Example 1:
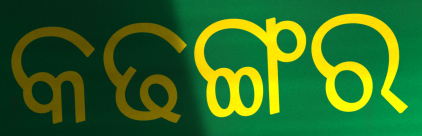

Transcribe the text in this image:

କଢଙ୍ଗର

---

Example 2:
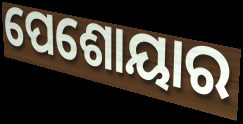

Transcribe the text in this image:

ପେଶୋୟାର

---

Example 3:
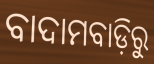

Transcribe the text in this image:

ବାଦାମବାଡ଼ିରୁ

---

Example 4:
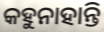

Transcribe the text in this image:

କହୁନାହାନ୍ତି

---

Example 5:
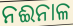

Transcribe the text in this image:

ନଈନାଳ